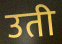
उती